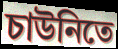
চাউনিতে